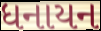
ધનાયન